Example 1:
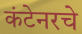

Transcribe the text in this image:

कंटेनरचे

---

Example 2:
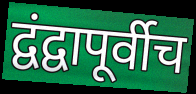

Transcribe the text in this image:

द्वंद्वापूर्वीच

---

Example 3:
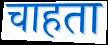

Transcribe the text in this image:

चाहता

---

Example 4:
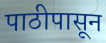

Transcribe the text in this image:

पाठीपासून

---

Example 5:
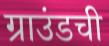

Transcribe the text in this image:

ग्राउंडची